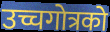
उच्चगोत्रको